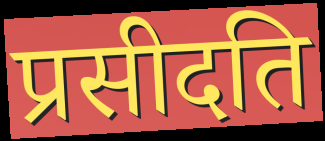
प्रसीदति